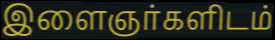
இளைஞர்களிடம்